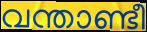
വന്താണ്ടീ